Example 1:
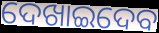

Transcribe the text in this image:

ଦେଖାଇଦେବ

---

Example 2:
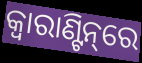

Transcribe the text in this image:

କ୍ବାରାଣ୍ଟିନ୍‌ରେ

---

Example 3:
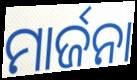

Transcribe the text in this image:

ମାର୍ଜନା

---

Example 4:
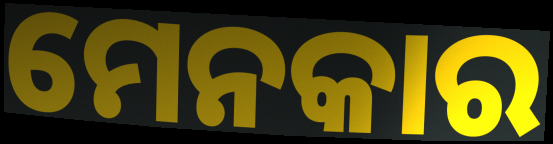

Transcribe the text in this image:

ମେନକାର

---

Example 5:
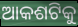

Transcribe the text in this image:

ଆକଶଟିକୁ